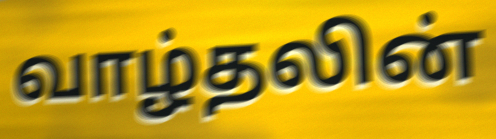
வாழ்தலின்